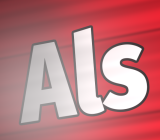
Als